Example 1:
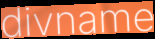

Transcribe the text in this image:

divname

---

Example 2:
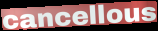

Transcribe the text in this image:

cancellous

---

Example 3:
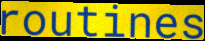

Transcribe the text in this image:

routines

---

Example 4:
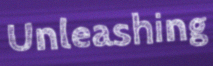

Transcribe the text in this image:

Unleashing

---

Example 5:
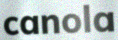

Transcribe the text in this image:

canola